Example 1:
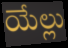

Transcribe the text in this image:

యేల్లు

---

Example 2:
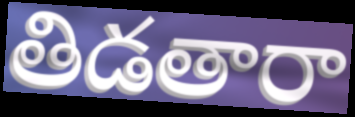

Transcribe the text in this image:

తిడతారా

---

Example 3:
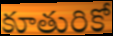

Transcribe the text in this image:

కూతురికో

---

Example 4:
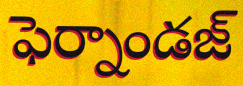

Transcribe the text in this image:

ఫెర్నాండజ్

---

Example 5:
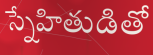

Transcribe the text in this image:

స్నేహితుడితో